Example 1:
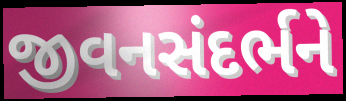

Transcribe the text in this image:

જીવનસંદર્ભને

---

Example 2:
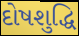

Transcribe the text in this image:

દોષશુદ્ધિ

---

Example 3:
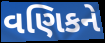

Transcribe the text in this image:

વણિકને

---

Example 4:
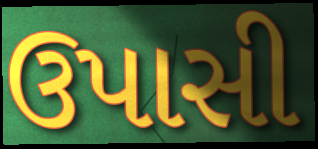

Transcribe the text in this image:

ઉપાસી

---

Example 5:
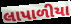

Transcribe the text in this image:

લાપાળીયા